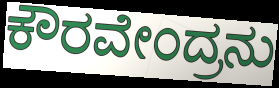
ಕೌರವೇಂದ್ರನು